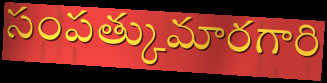
సంపత్కుమారగారి